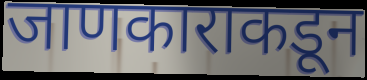
जाणकाराकडून